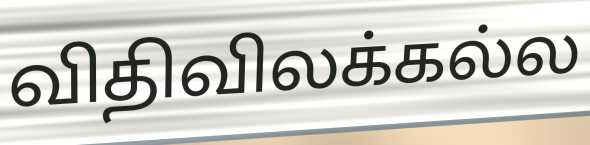
விதிவிலக்கல்ல